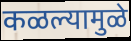
कळल्यामुळे